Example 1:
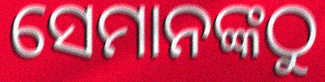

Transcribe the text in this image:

ସେମାନଙ୍କଠୁ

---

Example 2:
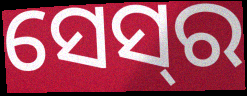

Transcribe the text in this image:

ସେସ୍‌ର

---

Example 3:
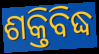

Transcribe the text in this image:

ଶକ୍ତିବିଦ୍ଧ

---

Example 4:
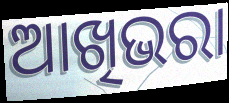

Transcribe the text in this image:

ଆଖିଭରା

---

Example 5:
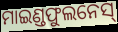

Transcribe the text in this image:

ମାଇଣ୍ଡଫୁଲନେସ୍